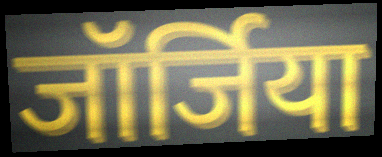
जॉर्जिया